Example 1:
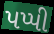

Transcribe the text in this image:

પપ્પી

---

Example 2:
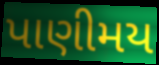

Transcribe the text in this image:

પાણીમય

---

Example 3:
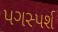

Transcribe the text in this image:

પગસ્પર્શ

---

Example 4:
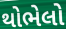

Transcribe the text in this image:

થોભેલો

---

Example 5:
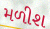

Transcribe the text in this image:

મળીશ